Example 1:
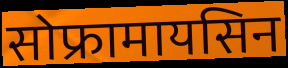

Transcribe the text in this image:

सोफ्रामायसिन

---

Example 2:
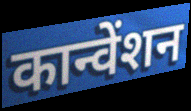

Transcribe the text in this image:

कान्वेंशन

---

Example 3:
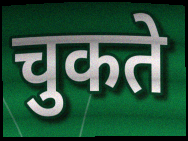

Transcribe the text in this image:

चुकते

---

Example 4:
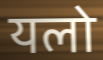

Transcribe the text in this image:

यलो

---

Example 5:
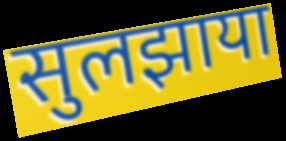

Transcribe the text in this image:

सुलझाया